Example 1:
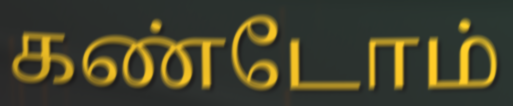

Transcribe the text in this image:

கண்டோம்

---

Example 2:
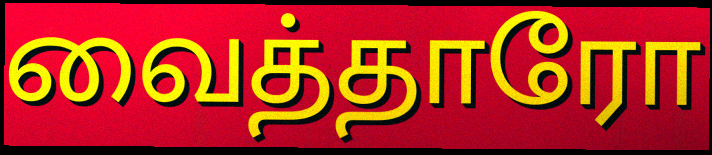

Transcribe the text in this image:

வைத்தாரோ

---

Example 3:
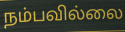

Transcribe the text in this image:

நம்பவில்லை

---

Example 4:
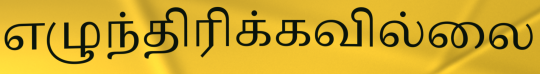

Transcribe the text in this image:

எழுந்திரிக்கவில்லை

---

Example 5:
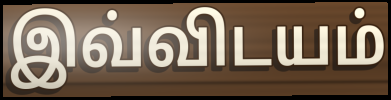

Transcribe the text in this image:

இவ்விடயம்